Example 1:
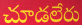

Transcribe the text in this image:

చూడలేరు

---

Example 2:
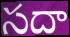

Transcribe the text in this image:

సదా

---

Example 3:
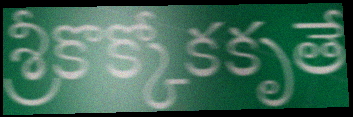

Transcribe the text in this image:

శ్రీకొక్కోకకృతే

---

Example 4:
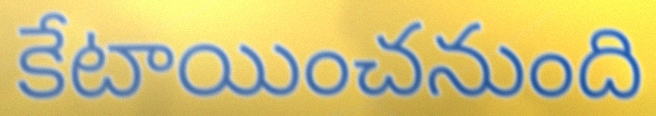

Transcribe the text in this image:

కేటాయించనుంది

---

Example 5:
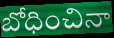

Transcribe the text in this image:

బోధించినా